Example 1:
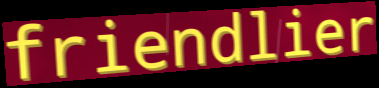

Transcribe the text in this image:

friendlier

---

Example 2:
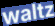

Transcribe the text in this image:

waltz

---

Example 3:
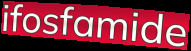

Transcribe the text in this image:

ifosfamide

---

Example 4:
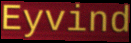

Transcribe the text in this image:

Eyvind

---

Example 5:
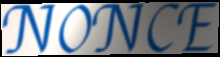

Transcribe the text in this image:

NONCE